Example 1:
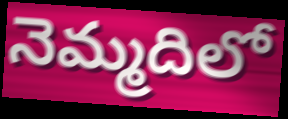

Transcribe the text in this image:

నెమ్మదిలో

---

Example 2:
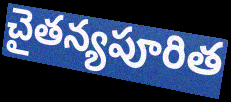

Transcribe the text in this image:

చైతన్యపూరిత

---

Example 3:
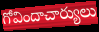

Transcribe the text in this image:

గోవిందాచార్యులు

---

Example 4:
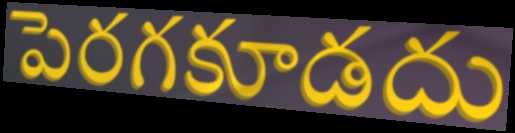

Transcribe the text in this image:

పెరగకూడదు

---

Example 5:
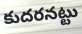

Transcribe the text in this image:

కుదరనట్టు